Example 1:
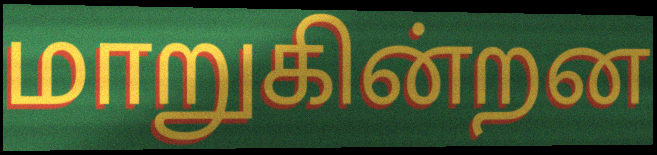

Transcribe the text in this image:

மாறுகின்றன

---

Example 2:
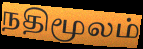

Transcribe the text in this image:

நதிமூலம்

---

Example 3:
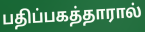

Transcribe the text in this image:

பதிப்பகத்தாரால்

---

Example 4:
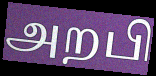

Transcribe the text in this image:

அறபி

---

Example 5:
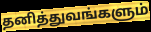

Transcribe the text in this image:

தனித்துவங்களும்